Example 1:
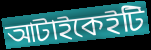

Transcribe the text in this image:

আটাইকেইটি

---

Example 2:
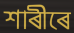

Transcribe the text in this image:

শাৰীৰে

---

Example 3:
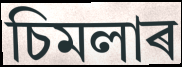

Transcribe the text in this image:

চিমলাৰ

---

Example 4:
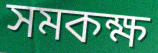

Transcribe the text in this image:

সমকক্ষ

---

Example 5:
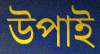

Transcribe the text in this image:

উপাই